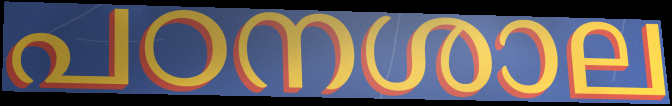
പഠനശാല